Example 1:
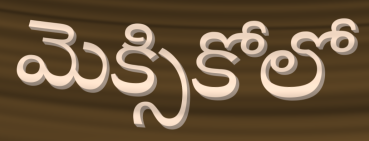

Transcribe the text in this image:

మెక్సికోలో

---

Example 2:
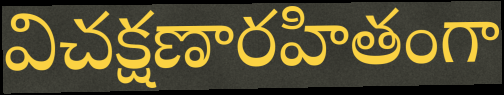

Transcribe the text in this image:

విచక్షణారహితంగా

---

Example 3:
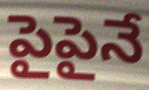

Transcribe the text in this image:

పైపైనే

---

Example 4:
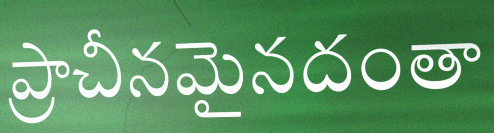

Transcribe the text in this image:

ప్రాచీనమైనదంతా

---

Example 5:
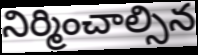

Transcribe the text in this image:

నిర్మించాల్సిన